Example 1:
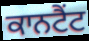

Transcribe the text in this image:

ਕਾਨਟੈਂਟ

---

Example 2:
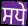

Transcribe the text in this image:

ਸਧੇ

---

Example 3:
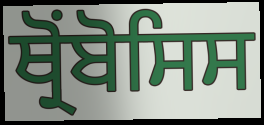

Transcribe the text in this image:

ਥ੍ਰੋਂਬੋਸਿਸ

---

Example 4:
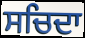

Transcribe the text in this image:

ਸਚਿਦਾ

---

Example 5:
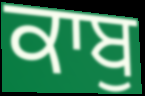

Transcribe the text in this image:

ਕਾਬੁ